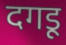
दगडू